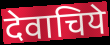
देवाचिये